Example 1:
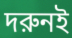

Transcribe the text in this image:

দরুনই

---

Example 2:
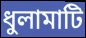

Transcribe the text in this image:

ধুলামাটি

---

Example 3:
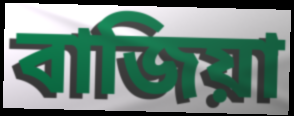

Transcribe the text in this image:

বাজিয়া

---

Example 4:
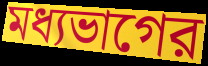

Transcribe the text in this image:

মধ্যভাগের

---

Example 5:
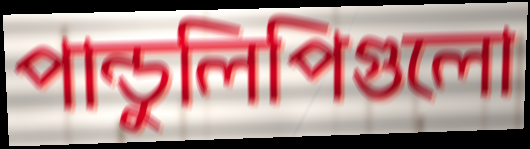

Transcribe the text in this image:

পান্ডুলিপিগুলো